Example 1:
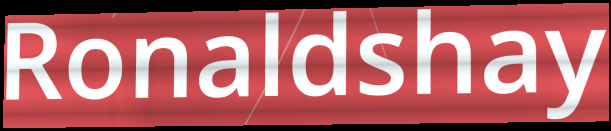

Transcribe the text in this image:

Ronaldshay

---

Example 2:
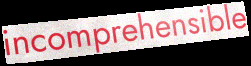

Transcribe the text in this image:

incomprehensible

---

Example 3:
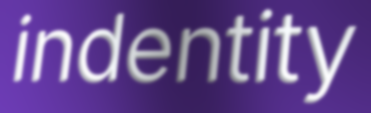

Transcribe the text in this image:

indentity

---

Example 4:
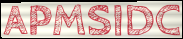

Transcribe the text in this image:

APMSIDC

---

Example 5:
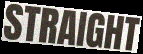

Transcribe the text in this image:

STRAIGHT